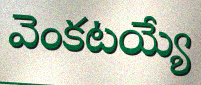
వెంకటయ్యే